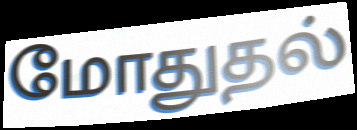
மோதுதல்